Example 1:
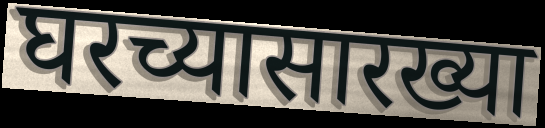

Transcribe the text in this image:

घरच्यासारख्या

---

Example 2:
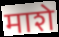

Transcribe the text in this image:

माशे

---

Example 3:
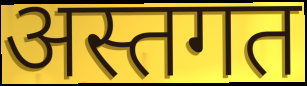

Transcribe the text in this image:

अस्तगत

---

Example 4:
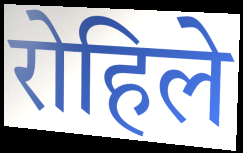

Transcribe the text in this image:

रोहिले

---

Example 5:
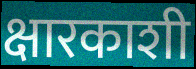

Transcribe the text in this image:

क्षारकाशी